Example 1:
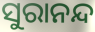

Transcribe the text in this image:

ସୁରାନନ୍ଦ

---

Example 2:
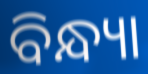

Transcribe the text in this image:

ବିନ୍ଧ୍ୟା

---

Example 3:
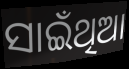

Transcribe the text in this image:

ସାଇଁଥିଆ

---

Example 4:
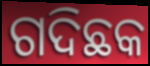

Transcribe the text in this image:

ଗଦିଛକ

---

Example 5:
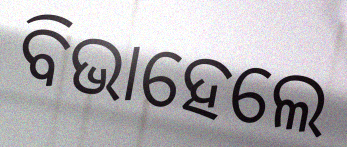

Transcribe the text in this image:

ବିଭାହେଲେ